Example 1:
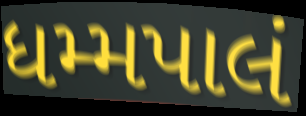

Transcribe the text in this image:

ધમ્મપાલં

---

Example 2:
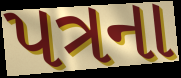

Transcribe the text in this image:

પત્રના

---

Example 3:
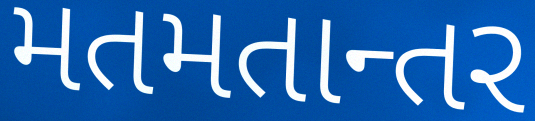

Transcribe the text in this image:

મતમતાન્તર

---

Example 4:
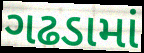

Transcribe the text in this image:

ગઢડામાં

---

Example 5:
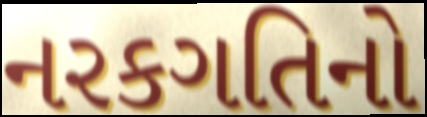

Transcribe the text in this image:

નરકગતિનો